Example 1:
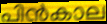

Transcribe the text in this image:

പിൻകാല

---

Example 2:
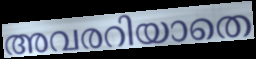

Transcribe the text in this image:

അവരറിയാതെ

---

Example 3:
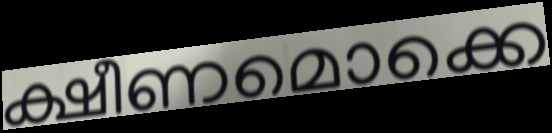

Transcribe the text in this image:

ക്ഷീണമൊക്കെ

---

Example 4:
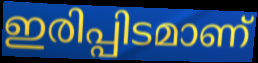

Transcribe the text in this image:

ഇരിപ്പിടമാണ്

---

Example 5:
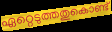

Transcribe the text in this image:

ഏറ്റെടുത്തതുകൊണ്ട്